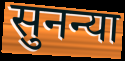
सुनन्या